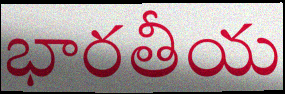
భారతీయ